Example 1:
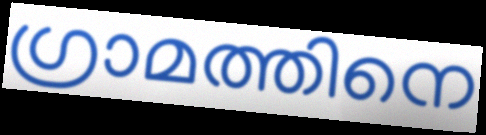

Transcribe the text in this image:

ഗ്രാമത്തിനെ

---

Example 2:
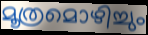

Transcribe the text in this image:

മൂത്രമൊഴിച്ചും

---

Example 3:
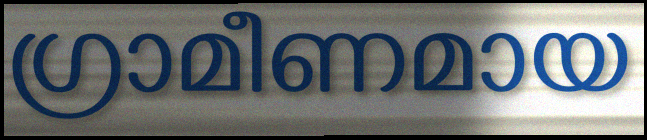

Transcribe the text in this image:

ഗ്രാമീണമായ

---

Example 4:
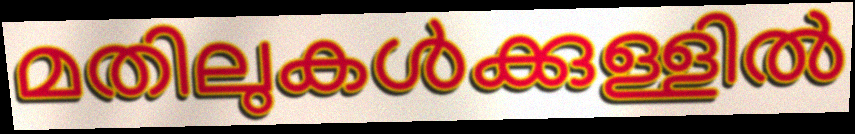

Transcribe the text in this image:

മതിലുകൾക്കുള്ളിൽ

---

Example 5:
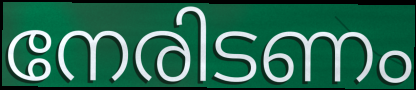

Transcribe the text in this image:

നേരിടണം